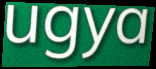
ugya